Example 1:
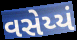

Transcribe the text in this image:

વસેય્યં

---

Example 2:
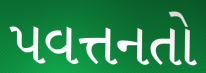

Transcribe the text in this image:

પવત્તનતો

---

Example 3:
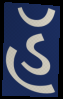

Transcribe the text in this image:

હૅ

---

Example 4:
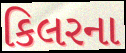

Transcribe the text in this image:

કિલરના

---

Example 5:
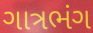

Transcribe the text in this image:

ગાત્રભંગ